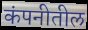
कंपनीतील